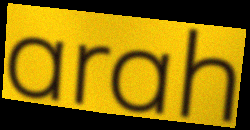
arah